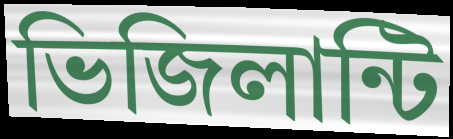
ভিজিলান্টি